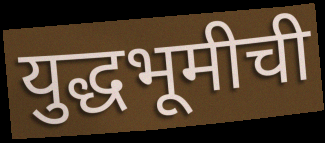
युद्धभूमीची